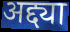
अद्द्या